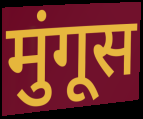
मुंगूस